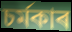
চৰ্মকাৰ